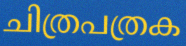
ചിത്രപത്രക